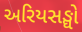
અરિયસઙ્ઘો